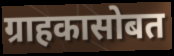
ग्राहकासोबत